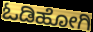
ಓಡಿಹೋಗಿ